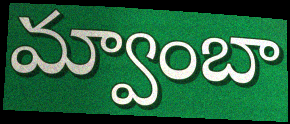
మ్వాంబా